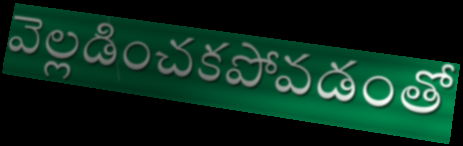
వెల్లడించకపోవడంతో